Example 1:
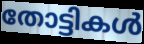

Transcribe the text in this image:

തോട്ടികൾ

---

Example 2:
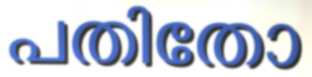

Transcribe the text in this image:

പതിതോ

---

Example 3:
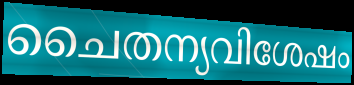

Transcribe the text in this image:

ചൈതന്യവിശേഷം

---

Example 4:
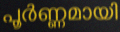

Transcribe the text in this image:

പൂർണ്ണമായി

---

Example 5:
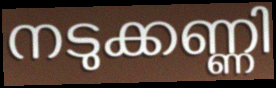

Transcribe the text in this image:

നടുക്കണ്ണി